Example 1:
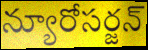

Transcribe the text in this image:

న్యూరోసర్జన్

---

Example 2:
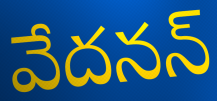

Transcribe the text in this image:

వేదనన్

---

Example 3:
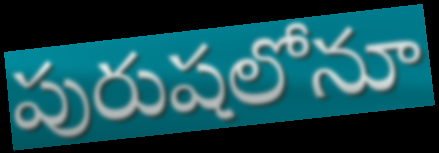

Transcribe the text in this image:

పురుషలోనూ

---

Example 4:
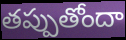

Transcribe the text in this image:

తప్పుతోందా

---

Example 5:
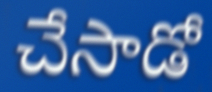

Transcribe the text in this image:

చేసాడో